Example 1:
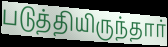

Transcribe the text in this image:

படுத்தியிருந்தார்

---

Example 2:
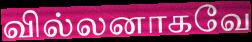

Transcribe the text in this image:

வில்லனாகவே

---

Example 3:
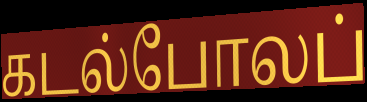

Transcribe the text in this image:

கடல்போலப்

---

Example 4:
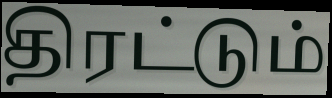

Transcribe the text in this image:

திரட்டும்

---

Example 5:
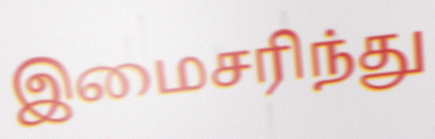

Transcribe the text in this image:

இமைசரிந்து